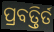
ପ୍ରବତ୍ତିର୍ତ